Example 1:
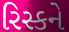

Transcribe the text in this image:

રિસ્કને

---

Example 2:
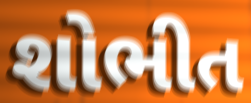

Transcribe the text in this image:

શોભીત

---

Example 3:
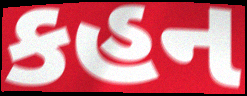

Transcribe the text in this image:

કહન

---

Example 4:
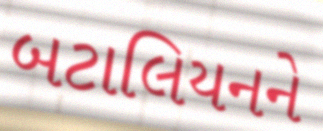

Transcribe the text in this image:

બટાલિયનને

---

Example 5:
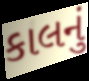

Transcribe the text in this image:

કાલનું